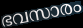
ഭവസാരം